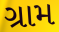
ગ્રામ